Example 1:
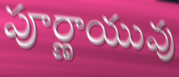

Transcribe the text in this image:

పూర్ణాయువు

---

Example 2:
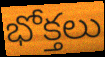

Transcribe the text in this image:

భోక్తలు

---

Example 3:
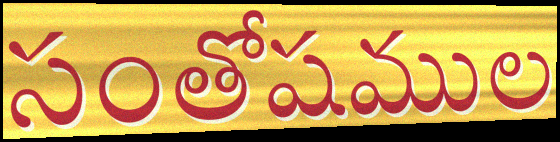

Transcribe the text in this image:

సంతోషముల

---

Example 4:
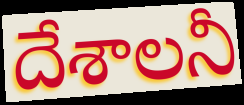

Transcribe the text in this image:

దేశాలనీ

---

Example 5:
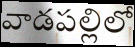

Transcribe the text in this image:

వాడపల్లిలో